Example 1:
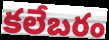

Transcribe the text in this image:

కలేబరం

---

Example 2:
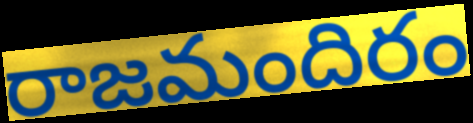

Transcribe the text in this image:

రాజమందిరం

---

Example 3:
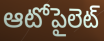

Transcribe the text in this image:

ఆటోపైలెట్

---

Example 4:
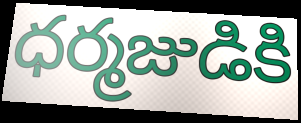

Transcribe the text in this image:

ధర్మజుడికి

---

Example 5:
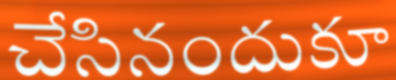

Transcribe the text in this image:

చేసినందుకూ